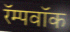
रॅम्पवॉक